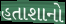
હતાશાનો